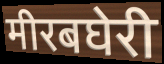
मीरबघेरी